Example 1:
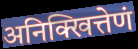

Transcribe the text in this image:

अनिक्खित्तेणं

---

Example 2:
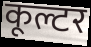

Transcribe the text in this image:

कूल्‍टर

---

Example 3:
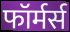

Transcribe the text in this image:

फॉर्मर्स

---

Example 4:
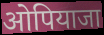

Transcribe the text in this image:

ओपियाजा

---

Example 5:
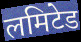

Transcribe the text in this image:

लमिटेड